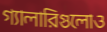
গ্যালারিগুলোও